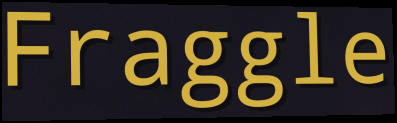
Fraggle